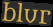
blur